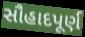
સૌહાદપૂર્ણ